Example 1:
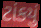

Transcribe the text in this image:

ટાંકયું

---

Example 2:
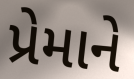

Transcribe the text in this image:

પ્રેમાને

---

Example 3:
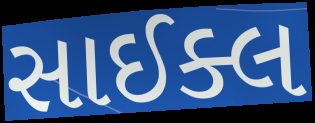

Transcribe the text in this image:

સાઈક્લ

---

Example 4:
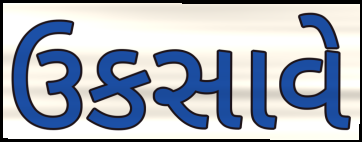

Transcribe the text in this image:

ઉકસાવે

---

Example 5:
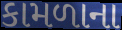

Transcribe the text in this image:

કામળાના